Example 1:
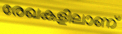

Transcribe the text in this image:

രേഖകളിലാണ്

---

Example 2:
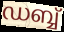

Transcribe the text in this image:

ഡബ്ബ്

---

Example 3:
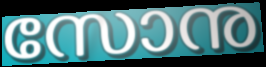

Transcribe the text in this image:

സോനു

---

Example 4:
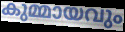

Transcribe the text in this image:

കുമ്മായവും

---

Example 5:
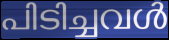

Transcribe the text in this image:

പിടിച്ചവൾ